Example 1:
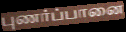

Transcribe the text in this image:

புணர்ப்பானை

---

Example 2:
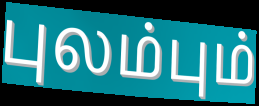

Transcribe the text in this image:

புலம்பும்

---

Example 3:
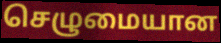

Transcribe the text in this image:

செழுமையான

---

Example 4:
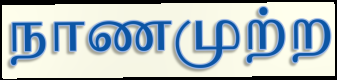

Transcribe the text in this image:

நாணமுற்ற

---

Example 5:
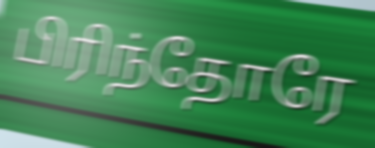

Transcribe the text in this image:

பிரிந்தோரே